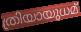
ത്രിയായുധമ്